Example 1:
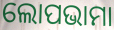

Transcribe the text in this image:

ଲୋପଭାମା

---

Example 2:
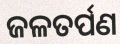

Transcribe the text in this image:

ଜଳତର୍ପଣ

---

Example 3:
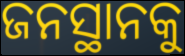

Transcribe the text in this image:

ଜନସ୍ଥାନକୁ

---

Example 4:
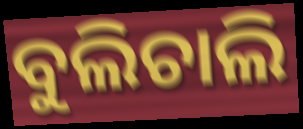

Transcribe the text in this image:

ବୁଲିଚାଲି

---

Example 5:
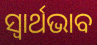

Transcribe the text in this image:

ସ୍ଵାର୍ଥଭାବ